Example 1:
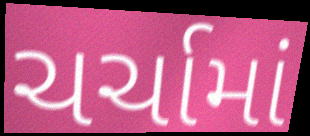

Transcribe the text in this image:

ચર્ચામાં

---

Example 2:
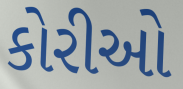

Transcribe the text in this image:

કોરીઓ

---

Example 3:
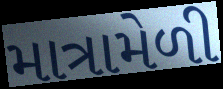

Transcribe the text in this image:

માત્રામેળી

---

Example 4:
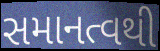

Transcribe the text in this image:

સમાનત્વથી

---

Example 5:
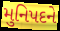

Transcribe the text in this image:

મુનિપદને